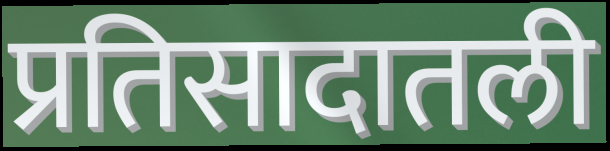
प्रतिसादातली